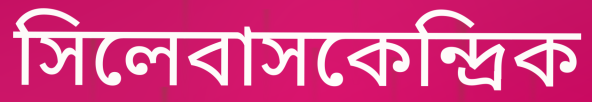
সিলেবাসকেন্দ্রিক